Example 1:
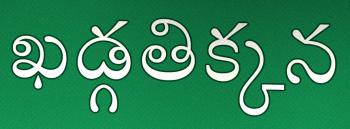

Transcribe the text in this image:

ఖడ్గతిక్కన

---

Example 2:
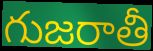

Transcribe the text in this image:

గుజరాతీ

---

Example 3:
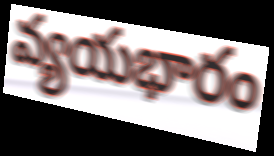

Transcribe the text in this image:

వ్యయభారం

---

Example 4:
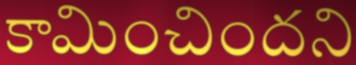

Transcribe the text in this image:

కామించిందని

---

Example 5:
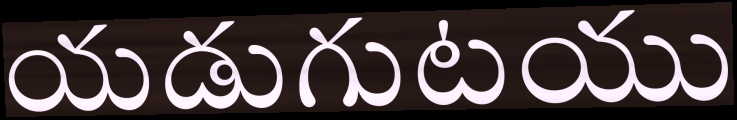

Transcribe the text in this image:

యడుగుటయు